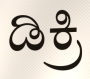
ಡಿಕ್ರಿ